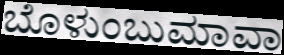
ಬೊಳುಂಬುಮಾವಾ